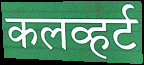
कलव्हर्ट